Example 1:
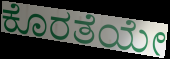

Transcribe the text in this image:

ಕೊರತೆಯೇ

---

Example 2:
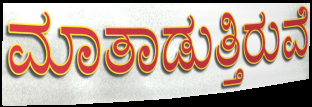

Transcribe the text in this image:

ಮಾತಾಡುತ್ತಿರುವೆ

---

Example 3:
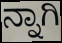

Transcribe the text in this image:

ನ್ನಾಗಿ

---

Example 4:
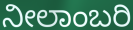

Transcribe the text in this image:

ನೀಲಾಂಬರಿ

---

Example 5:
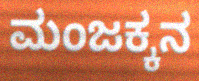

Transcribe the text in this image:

ಮಂಜಕ್ಕನ